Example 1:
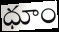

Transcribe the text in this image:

ధూం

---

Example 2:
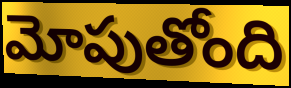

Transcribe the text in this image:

మోపుతోంది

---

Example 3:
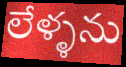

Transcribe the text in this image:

లేళ్ళను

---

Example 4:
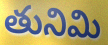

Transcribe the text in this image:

తునిమి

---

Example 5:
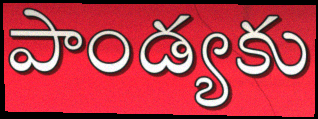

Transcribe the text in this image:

పాండ్యకు